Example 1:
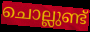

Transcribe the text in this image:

ചൊല്ലുണ്ട്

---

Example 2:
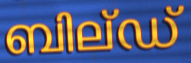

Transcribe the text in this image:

ബില്ഡ്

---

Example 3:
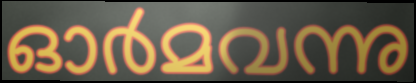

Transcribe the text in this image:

ഓർമവന്നു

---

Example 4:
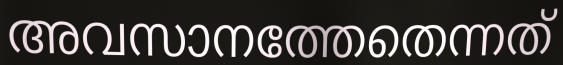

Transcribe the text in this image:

അവസാനത്തേതെന്നത്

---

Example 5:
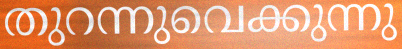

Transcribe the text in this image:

തുറന്നുവെക്കുന്നു